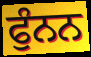
ਫੁੰਨਨ